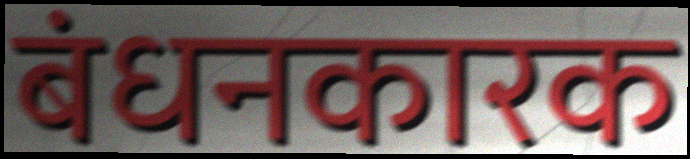
बंधनकारक